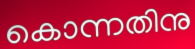
കൊന്നതിനു